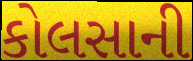
કોલસાની